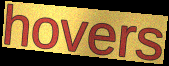
hovers